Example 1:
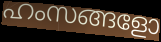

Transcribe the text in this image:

ഹംസങ്ങളോ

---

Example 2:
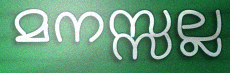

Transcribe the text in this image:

മനസ്സല്ല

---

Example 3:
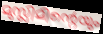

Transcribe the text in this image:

മുസ്ലിമിന്റെയും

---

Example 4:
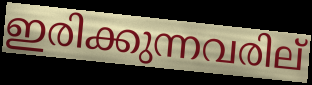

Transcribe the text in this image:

ഇരിക്കുന്നവരില്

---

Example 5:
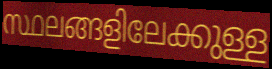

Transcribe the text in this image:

സ്ഥലങ്ങളിലേക്കുള്ള